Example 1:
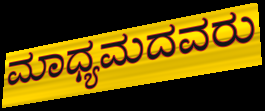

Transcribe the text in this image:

ಮಾಧ್ಯಮದವರು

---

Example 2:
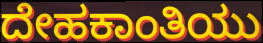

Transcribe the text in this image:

ದೇಹಕಾಂತಿಯು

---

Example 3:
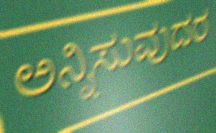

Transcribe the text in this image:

ಅನ್ನಿಸುವುದರ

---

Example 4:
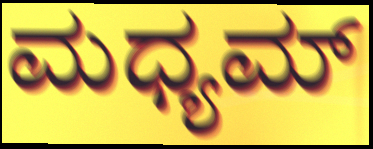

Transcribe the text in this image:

ಮಧ್ಯಮ್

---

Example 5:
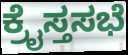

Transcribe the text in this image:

ಕ್ರೈಸ್ತಸಭೆ